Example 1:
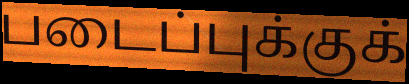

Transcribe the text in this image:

படைப்புக்குக்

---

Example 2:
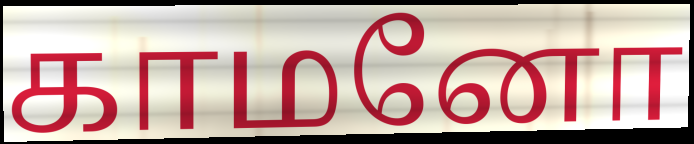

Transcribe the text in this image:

காமனோ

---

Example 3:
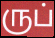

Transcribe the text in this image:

ருப்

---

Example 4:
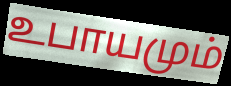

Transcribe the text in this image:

உபாயமும்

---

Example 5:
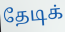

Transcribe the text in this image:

தேடிக்